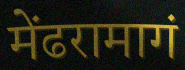
मेंढरामागं